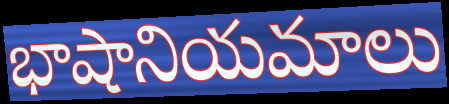
భాషానియమాలు